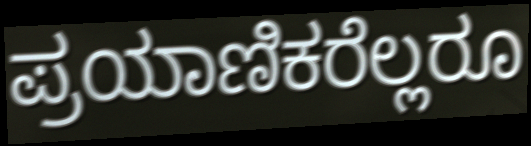
ಪ್ರಯಾಣಿಕರೆಲ್ಲರೂ